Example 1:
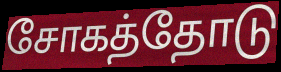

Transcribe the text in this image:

சோகத்தோடு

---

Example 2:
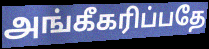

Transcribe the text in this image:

அங்கீகரிப்பதே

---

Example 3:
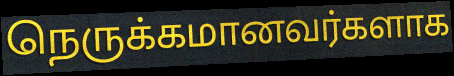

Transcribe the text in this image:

நெருக்கமானவர்களாக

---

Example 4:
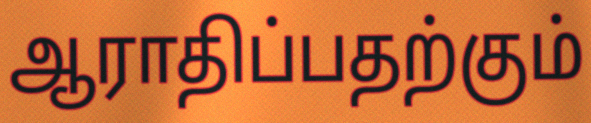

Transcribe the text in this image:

ஆராதிப்பதற்கும்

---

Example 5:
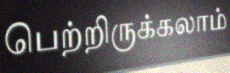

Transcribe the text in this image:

பெற்றிருக்கலாம்